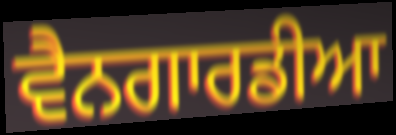
ਵੈਨਗਾਰਡੀਆ